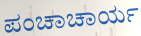
ಪಂಚಾಚಾರ್ಯ